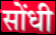
सोंधी